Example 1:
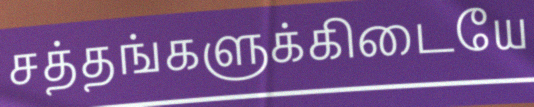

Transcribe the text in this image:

சத்தங்களுக்கிடையே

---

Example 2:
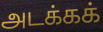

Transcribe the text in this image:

அடக்கக்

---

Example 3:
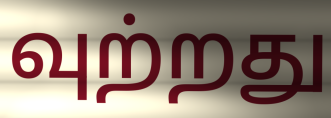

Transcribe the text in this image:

வுற்றது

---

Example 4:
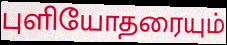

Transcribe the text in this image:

புளியோதரையும்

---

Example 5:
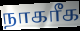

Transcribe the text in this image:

நாகரீக